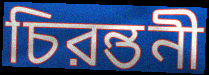
চিরন্তনী